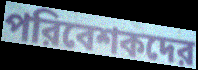
পরিবেশকদের